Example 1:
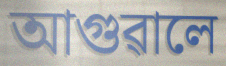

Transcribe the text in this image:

আগুৱালে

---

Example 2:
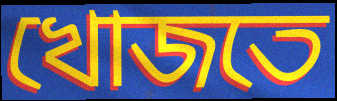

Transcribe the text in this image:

খোজতে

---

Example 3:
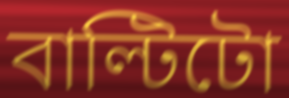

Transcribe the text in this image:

বাল্টিটো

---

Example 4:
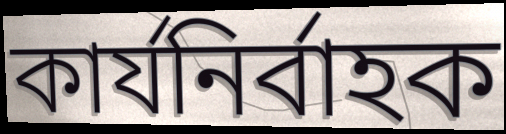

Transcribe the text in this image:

কাৰ্যনিৰ্বাহক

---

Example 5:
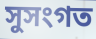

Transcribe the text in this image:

সুসংগত